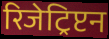
रिजेट्रिप्टन